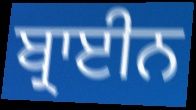
ਬ੍ਰਾਈਨ